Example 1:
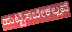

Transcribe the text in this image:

ಹುಟ್ಟಿಸಬೇಕಲ್ಲವೆ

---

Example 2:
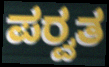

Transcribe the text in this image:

ಪರ್‍ವತ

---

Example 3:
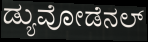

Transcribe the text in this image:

ಡ್ಯುವೋಡೆನಲ್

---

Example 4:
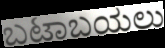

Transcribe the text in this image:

ಬಟಾಬಯಲು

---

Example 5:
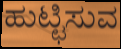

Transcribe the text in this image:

ಹುಟ್ಟಿಸುವ